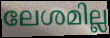
ലേശമില്ല